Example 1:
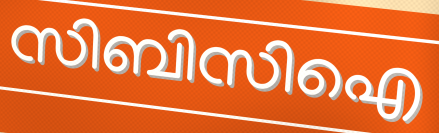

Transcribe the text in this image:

സിബിസിഐ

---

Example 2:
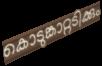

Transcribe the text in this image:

കൊടുങ്കാറ്റടിക്കും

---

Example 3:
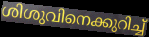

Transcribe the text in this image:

ശിശുവിനെക്കുറിച്ച്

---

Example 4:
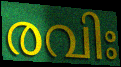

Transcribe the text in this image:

രവിഃ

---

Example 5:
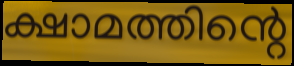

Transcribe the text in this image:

ക്ഷാമത്തിന്റെ